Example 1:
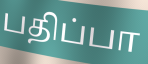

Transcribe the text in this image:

பதிப்பா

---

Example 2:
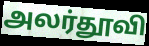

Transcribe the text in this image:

அலர்தூவி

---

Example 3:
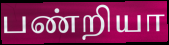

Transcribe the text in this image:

பண்றியா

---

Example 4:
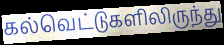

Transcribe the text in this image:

கல்வெட்டுகளிலிருந்து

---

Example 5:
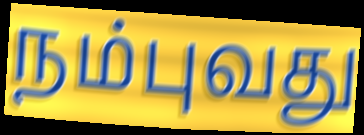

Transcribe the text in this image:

நம்புவது